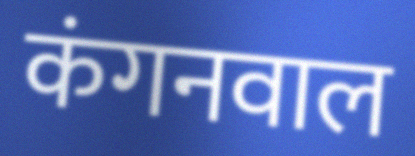
कंगनवाल